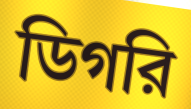
ডিগরি